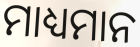
ମାଧ୍ଯମାନ